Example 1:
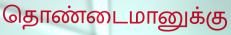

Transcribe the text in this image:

தொண்டைமானுக்கு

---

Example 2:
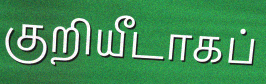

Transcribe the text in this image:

குறியீடாகப்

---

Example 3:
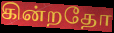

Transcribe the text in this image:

கின்றதோ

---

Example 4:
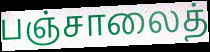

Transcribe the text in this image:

பஞ்சாலைத்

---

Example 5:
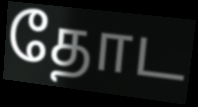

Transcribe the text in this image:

தோட